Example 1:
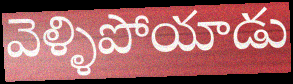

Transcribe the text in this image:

వెళ్ళిపోయాడు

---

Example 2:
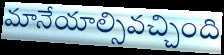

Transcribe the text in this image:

మానేయాల్సివచ్చింది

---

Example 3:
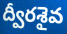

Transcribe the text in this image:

ద్వీరశైవ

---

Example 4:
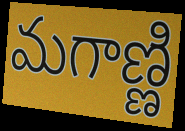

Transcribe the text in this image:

మగాణ్ణి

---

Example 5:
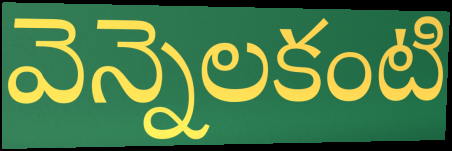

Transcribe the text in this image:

వెన్నెలకంటి